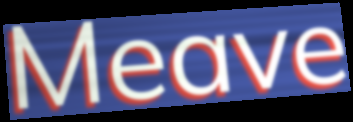
Meave